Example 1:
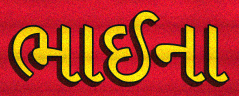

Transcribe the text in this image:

ભાઈના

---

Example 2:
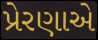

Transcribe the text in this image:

પ્રેરણાએ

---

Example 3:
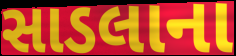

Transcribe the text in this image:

સાડલાના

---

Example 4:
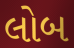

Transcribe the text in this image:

લોબ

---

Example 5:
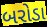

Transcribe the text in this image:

બરોડા